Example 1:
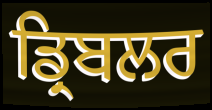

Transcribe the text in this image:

ਡ੍ਰਿਬਲਰ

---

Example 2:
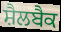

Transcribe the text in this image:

ਸ਼ੈਲਬੈਕ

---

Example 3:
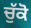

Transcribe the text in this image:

ਚੁੱਕੋ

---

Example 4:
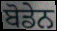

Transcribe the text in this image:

ਬੋਡੇਨ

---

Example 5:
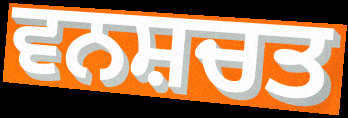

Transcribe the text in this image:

ਵਨਸ਼ਚਤ